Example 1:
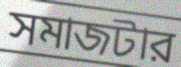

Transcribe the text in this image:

সমাজটার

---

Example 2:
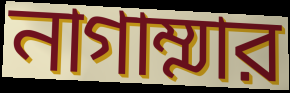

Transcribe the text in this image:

নাগাম্মার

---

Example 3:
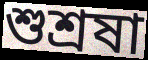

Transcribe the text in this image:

শুশ্রষা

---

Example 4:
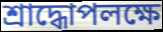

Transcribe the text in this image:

শ্রাদ্ধোপলক্ষে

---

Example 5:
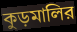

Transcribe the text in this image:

কুড়মালির